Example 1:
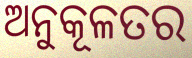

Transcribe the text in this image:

ଅନୁକୂଳତର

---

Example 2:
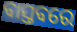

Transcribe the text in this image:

ବାସ୍ତବରେ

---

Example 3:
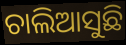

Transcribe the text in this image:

ଚାଲିଆସୁଛି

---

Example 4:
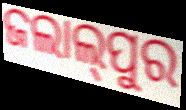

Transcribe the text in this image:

ଜଲାଲ୍‍ପୁର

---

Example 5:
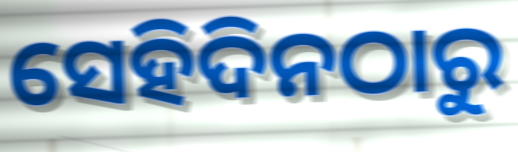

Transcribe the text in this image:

ସେହିଦିନଠାରୁ